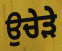
ਉਚੇੜੇ